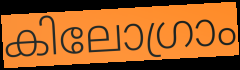
കിലോഗ്രാം